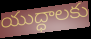
యుద్ధాలకు